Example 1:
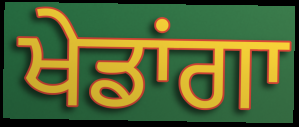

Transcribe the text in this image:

ਖੇਡਾਂਗਾ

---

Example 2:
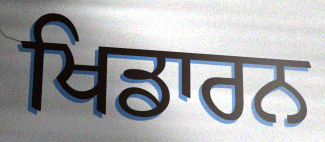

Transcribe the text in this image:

ਖਿਡਾਰਨ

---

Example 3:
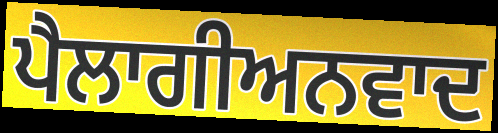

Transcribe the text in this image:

ਪੈਲਾਗੀਅਨਵਾਦ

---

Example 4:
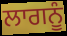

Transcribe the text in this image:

ਲਾਗਨੂੰ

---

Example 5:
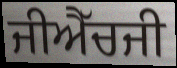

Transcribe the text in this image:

ਜੀਐੱਚਜੀ